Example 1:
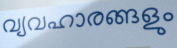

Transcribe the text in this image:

വ്യവഹാരങ്ങളും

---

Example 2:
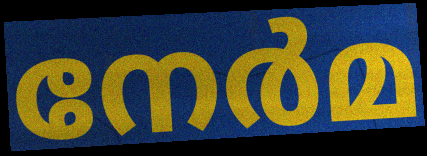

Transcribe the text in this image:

നേർമ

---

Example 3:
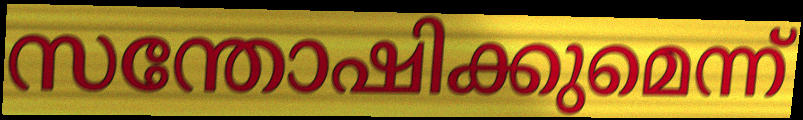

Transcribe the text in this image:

സന്തോഷിക്കുമെന്ന്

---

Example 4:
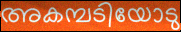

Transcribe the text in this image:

അകമ്പടിയോടു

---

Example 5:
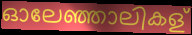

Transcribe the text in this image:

ഓലേഞ്ഞാലികള്